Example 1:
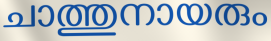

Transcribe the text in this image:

ചാത്തുനായരും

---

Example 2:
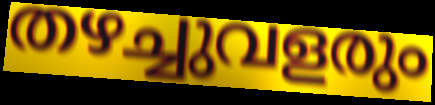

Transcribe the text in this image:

തഴച്ചുവളരും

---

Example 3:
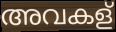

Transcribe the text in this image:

അവകള്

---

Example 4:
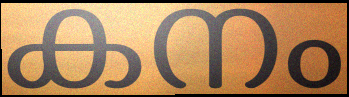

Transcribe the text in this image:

കനം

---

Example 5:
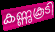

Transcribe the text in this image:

കണ്ണുകൂടി